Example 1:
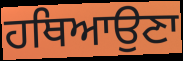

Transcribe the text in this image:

ਹਥਿਆਉਣਾ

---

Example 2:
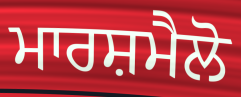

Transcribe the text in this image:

ਮਾਰਸ਼ਮੈਲੋ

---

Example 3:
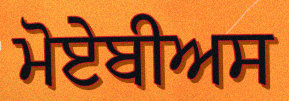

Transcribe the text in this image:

ਮੋਏਬੀਅਸ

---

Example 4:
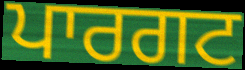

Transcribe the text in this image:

ਪਾਰਗਟ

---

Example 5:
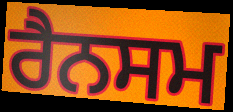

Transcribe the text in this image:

ਰੈਨਸਮ